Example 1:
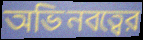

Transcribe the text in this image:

অভিনবত্বের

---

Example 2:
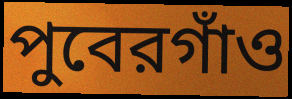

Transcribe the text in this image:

পুবেরগাঁও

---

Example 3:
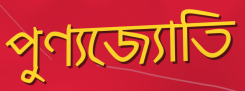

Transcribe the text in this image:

পুণ্যজ্যোতি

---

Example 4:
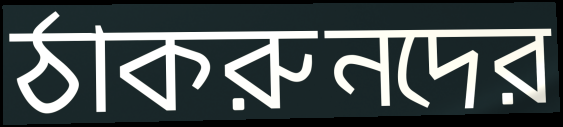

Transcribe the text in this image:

ঠাকরুনদের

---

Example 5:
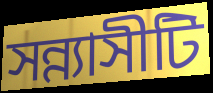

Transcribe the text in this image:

সন্ন্যাসীটি